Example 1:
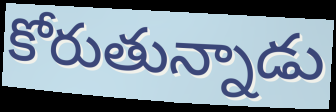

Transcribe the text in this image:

కోరుతున్నాడు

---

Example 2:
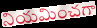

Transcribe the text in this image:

నియమించగా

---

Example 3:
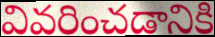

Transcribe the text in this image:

వివరించడానికి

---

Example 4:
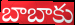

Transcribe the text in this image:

బాబాకు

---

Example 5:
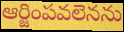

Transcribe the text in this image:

ఆర్జింపవలెనను